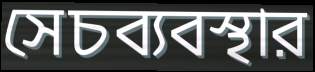
সেচব্যবস্থার